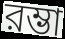
রম্ভা